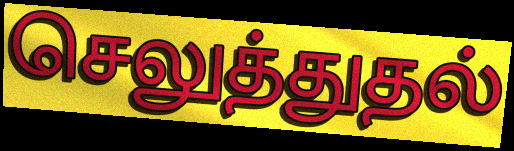
செலுத்துதல்